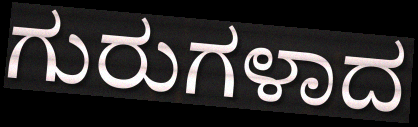
ಗುರುಗಳಾದ